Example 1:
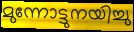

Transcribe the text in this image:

മുന്നോട്ടുനയിച്ചു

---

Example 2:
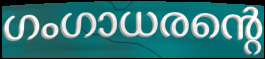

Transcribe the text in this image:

ഗംഗാധരന്റെ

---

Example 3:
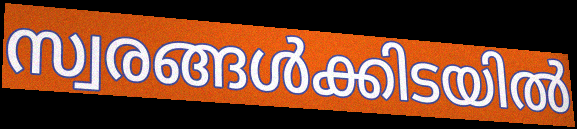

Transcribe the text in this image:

സ്വരങ്ങൾക്കിടയിൽ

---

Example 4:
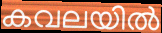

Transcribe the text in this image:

കവലയിൽ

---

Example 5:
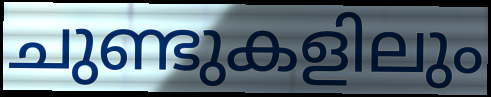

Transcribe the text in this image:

ചുണ്ടുകളിലും